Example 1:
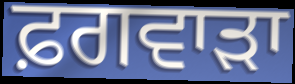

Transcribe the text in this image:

ਫ਼ਗਵਾੜਾ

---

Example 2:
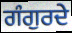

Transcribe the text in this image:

ਗੰਗੁਰਦੇ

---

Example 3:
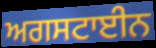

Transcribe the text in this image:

ਅਗਸਟਾਈਨ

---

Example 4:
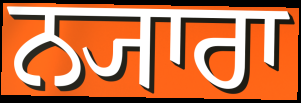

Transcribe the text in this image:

ਨ੍ਯਾਰਾ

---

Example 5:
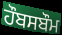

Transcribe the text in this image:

ਹੌਬਸਬੌਮ